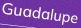
Guadalupe